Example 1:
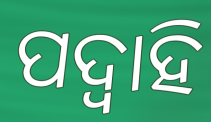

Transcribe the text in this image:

ପଦ୍ଵାହି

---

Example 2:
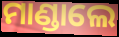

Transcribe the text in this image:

ମାଣ୍ଡାଲେ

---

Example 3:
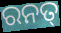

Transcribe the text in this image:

ରନତ୍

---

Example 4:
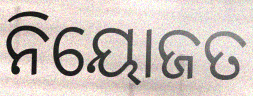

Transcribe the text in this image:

ନିୟୋଜତ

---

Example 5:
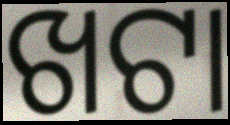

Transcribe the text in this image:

ଖଟା